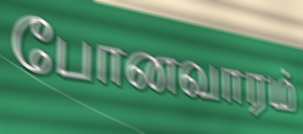
போனவாரம்